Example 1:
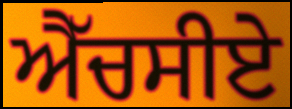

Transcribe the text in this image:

ਐੱਚਸੀਏ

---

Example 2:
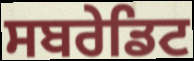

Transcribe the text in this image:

ਸਬਰੇਡਿਟ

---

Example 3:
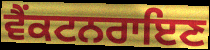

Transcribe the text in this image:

ਵੈਂਕਟਨਰਾਇਣ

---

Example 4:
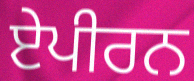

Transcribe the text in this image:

ਏਪੀਰਨ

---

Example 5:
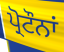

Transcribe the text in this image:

ਪ੍ਰੋਟੌਨਾਂ